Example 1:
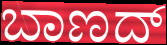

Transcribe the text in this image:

ಬಾಣದ್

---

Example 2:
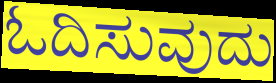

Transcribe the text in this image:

ಓದಿಸುವುದು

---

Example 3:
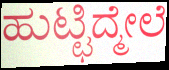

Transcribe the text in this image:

ಹುಟ್ಟಿದ್ಮೇಲೆ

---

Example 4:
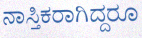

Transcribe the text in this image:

ನಾಸ್ತಿಕರಾಗಿದ್ದರೂ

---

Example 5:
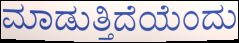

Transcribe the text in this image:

ಮಾಡುತ್ತಿದೆಯೆಂದು